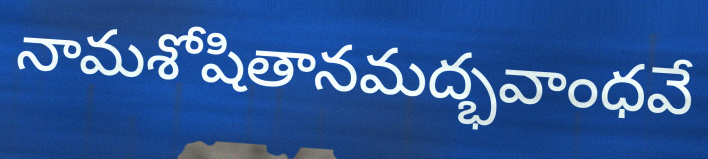
నామశోషితానమద్భవాంధవే